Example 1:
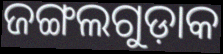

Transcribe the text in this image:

ଜଙ୍ଗଲଗୁଡ଼ାକ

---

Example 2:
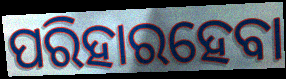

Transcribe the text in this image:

ପରିହାରହେବା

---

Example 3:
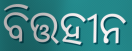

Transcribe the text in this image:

ବିତ୍ତହୀନ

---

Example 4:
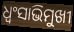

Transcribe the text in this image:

ଧ୍ଵଂସାଭିମୁଖୀ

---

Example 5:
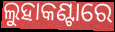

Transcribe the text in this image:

ଲୁହାକଣ୍ଟାରେ